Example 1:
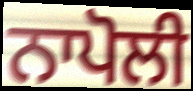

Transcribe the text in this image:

ਨਾਪੋਲੀ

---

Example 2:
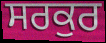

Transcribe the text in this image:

ਸਰਕੁਰ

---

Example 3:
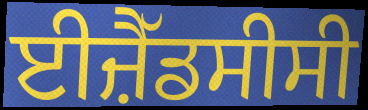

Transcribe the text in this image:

ਈਜ਼ੈੱਡਸੀਸੀ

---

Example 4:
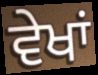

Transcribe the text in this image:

ਵੇਖਾਂ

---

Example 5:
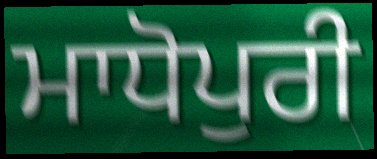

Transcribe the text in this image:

ਮਾਧੋਪੁਰੀ